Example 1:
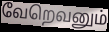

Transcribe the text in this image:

வேறெவனும்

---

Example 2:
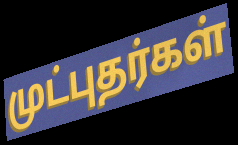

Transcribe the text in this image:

முட்புதர்கள்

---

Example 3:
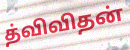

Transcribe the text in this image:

த்விவிதன்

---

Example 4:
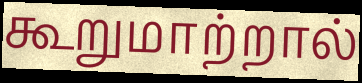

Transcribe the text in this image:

கூறுமாற்றால்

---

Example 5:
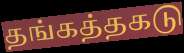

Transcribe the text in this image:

தங்கத்தகடு